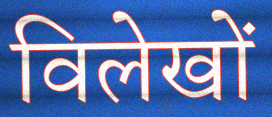
विलेखों